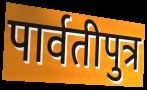
पार्वतीपुत्र